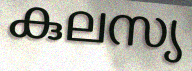
കുലസ്യ